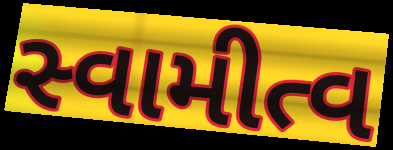
સ્વામીત્વ